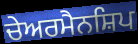
ਚੇਅਰਮੈਨਸ਼ਿਪ